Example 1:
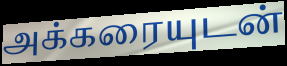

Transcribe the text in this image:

அக்கரையுடன்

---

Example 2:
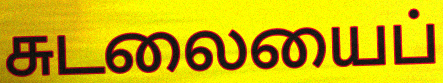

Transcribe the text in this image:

சுடலையைப்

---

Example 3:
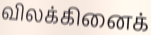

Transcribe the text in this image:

விலக்கினைக்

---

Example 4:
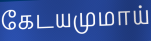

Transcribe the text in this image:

கேடயமுமாய்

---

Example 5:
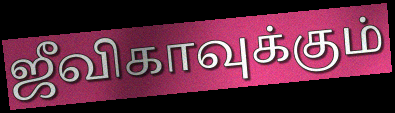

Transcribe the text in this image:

ஜீவிகாவுக்கும்